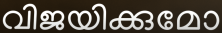
വിജയിക്കുമോ